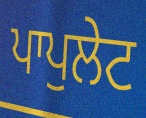
ਪਾਪੁਲੇਟ